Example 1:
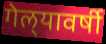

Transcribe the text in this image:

गेल्यावर्षी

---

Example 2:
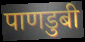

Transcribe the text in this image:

पाणडुबी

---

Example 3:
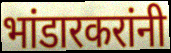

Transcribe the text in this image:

भांडारकरांनी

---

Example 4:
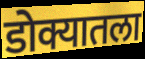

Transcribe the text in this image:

डोक्यातला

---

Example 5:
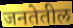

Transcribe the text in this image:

जनतेतील